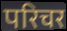
परिचर